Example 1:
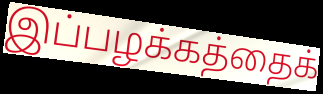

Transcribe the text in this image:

இப்பழக்கத்தைக்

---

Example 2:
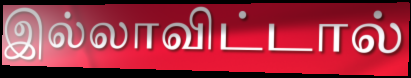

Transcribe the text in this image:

இல்லாவிட்டால்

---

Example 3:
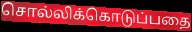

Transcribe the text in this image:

சொல்லிக்கொடுப்பதை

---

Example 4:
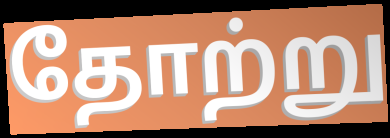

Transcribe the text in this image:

தோற்று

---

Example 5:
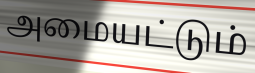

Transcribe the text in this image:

அமையட்டும்